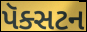
પૅક્સટન